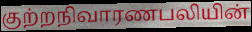
குற்றநிவாரணபலியின்